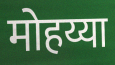
मोहय्या